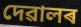
দেৱালৰ